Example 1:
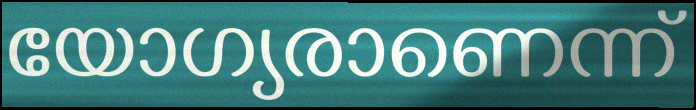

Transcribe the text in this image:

യോഗ്യരാണെന്ന്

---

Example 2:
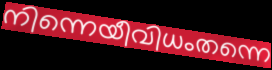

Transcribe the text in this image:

നിന്നെയീവിധംതന്നെ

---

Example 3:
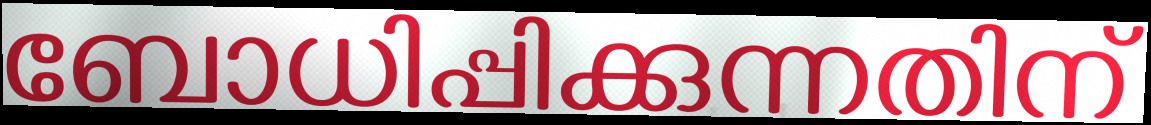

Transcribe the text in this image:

ബോധിപ്പിക്കുന്നതിന്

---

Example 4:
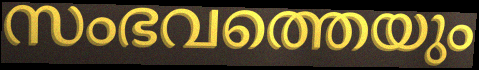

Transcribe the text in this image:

സംഭവത്തെയും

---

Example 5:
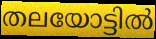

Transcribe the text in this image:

തലയോട്ടിൽ